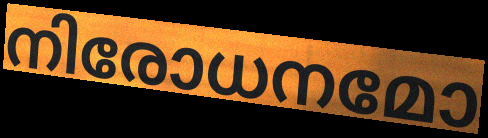
നിരോധനമോ